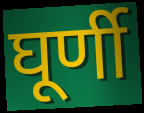
घूर्णी